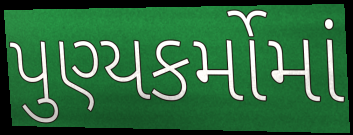
પુણ્યકર્મોમાં